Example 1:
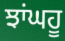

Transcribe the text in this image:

ਝਾਂਘਹੂ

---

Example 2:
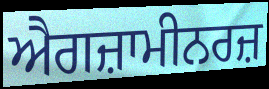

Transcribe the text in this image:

ਐਗਜ਼ਾਮੀਨਰਜ਼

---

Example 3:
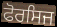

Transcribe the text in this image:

ਫੋਰਸਿਜ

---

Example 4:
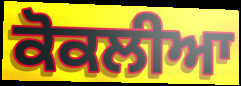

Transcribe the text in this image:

ਕੋਕਲੀਆ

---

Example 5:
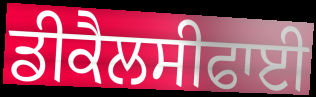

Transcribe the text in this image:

ਡੀਕੈਲਸੀਫਾਈ